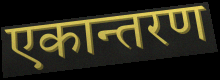
एकान्तरण